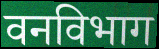
वनविभाग